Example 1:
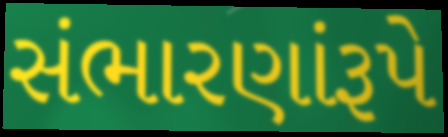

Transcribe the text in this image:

સંભારણાંરૂપે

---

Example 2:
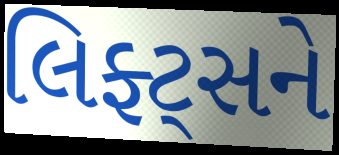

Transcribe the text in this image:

લિફ્ટ્સને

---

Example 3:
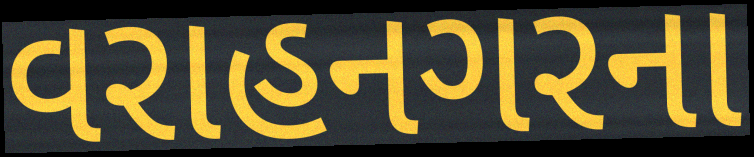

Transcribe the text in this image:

વરાહનગરના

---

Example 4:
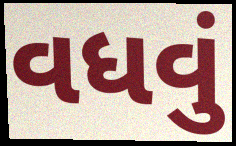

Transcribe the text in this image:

વધવું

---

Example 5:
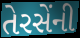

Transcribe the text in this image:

તેરસેંની